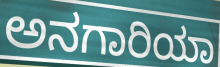
ಅನಗಾರಿಯಾ